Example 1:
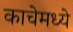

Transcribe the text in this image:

काचेमध्ये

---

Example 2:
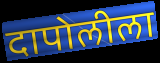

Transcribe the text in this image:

दापोलीला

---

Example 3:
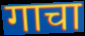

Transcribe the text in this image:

गाचा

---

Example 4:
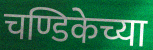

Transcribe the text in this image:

चण्डिकेच्या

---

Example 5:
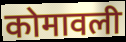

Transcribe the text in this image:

कोमावली